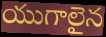
యుగాలైన